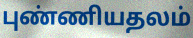
புண்ணியதலம்